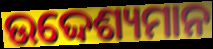
ଉଦ୍ଦେଶ୍ୟମାନ